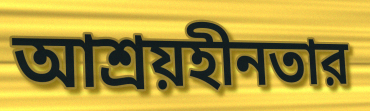
আশ্রয়হীনতার